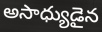
అసాధ్యుడైన